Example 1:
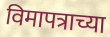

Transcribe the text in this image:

विमापत्राच्या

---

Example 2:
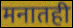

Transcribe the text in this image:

मनातही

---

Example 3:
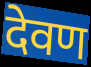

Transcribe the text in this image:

देवण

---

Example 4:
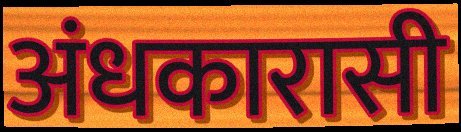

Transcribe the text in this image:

अंधकारासी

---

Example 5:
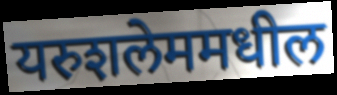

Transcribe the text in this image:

यरुशलेममधील